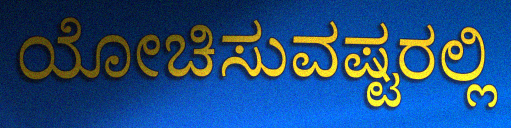
ಯೋಚಿಸುವಷ್ಟರಲ್ಲಿ